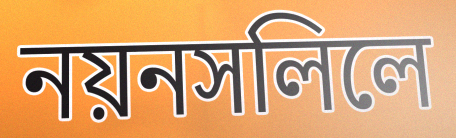
নয়নসলিলে